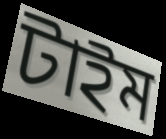
টাইম